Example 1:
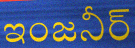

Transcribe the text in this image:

ఇంజనీర్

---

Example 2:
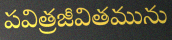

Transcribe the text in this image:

పవిత్రజీవితమును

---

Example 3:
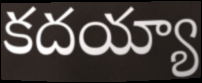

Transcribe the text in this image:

కదయ్యా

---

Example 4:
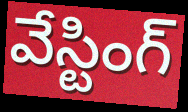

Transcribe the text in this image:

వేస్టింగ్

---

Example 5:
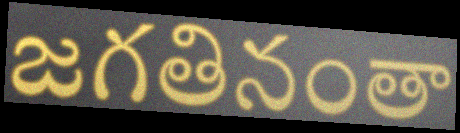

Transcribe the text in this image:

జగతినంతా